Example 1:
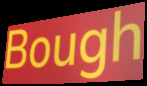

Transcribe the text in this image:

Bough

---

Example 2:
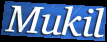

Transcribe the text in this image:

Mukil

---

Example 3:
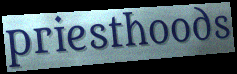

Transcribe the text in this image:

priesthoods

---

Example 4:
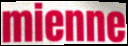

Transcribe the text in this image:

mienne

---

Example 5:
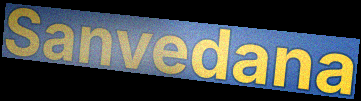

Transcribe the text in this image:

Sanvedana